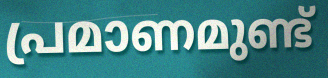
പ്രമാണമുണ്ട്